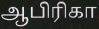
ஆபிரிகா